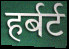
हर्बर्ट